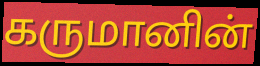
கருமானின்